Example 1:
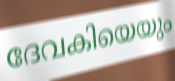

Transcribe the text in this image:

ദേവകിയെയും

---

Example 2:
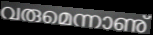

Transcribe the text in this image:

വരുമെന്നാണു്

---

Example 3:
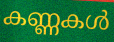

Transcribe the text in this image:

കണ്ണകൾ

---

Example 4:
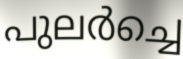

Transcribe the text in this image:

പുലർച്ചെ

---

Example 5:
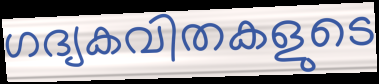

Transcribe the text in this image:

ഗദ്യകവിതകളുടെ